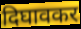
दिघावकर